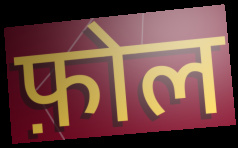
फ़ोल